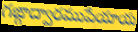
గఙ్గాద్వారముపేయాయ